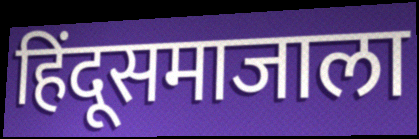
हिंदूसमाजाला